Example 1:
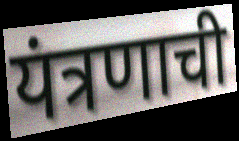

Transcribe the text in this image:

यंत्रणाची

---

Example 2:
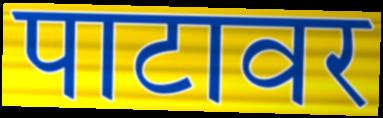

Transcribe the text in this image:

पाटावर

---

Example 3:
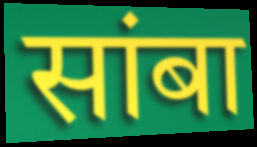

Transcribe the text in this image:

सांबा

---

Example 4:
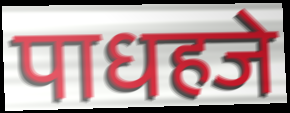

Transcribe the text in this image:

पाधहजे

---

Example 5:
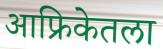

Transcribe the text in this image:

आफ्रिकेतला